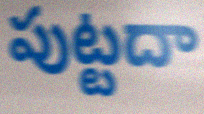
పుట్టదా